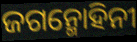
ଜଗନ୍ମୋହିନୀ